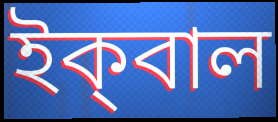
ইক্‌বাল